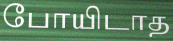
போயிடாத